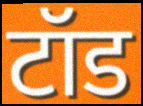
टॉड